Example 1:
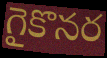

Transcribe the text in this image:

గైకొనర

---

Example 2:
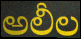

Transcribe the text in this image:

అలీల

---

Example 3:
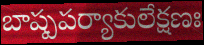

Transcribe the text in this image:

బాష్పపర్యాకులేక్షణః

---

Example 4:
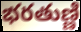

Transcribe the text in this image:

భరతుణ్ణి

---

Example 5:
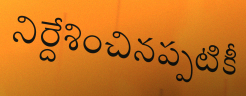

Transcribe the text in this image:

నిర్దేశించినప్పటికీ